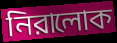
নিরালোক